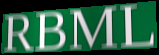
RBML